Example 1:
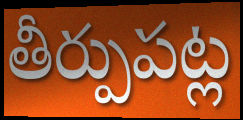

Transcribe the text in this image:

తీర్పుపట్ల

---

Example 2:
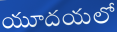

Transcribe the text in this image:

యూదయలో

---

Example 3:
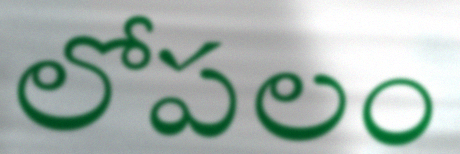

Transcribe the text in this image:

లోపలం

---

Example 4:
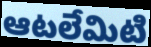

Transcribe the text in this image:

ఆటలేమిటి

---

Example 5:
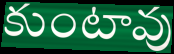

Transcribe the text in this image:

కుంటావు